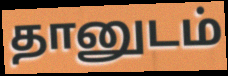
தானுடம்